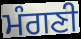
ਮੰਗਣੀ